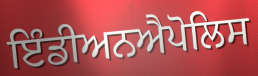
ਇੰਡੀਅਨਐਪੋਲਿਸ